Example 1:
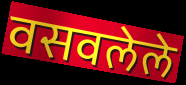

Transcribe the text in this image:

वसवलेले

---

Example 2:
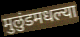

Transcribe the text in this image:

मुलुंडमधल्या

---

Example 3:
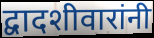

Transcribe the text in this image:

द्वादशीवारांनी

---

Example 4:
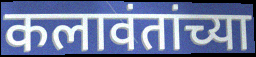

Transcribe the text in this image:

कलावंतांच्या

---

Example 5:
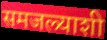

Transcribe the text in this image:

समजल्याशी